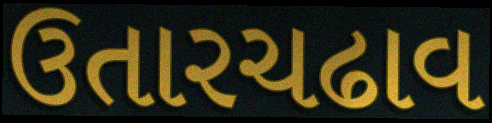
ઉતારચઢાવ